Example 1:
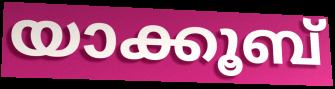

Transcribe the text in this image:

യാക്കൂബ്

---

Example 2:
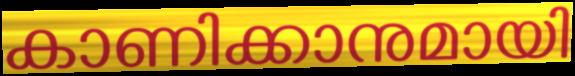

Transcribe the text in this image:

കാണിക്കാനുമായി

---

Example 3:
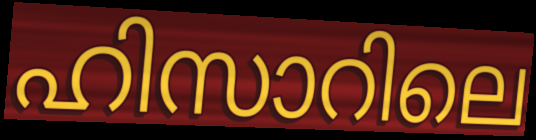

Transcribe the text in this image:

ഹിസാറിലെ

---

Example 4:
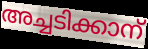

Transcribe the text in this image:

അച്ചടിക്കാന്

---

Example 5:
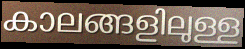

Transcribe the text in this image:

കാലങ്ങളിലുള്ള